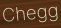
Chegg